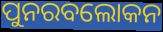
ପୁନରବଲୋକନ